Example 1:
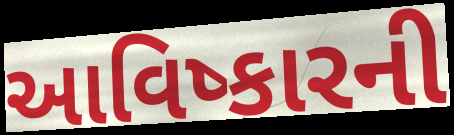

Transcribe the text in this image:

આવિષ્કારની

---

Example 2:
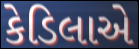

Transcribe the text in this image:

કેડિલાએ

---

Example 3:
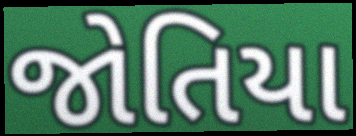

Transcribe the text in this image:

જોતિયા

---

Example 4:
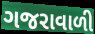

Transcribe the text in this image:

ગજરાવાળી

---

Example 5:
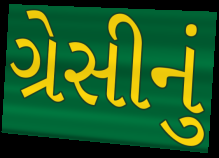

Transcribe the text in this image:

ગ્રેસીનું